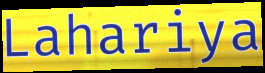
Lahariya